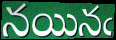
నయినఁ